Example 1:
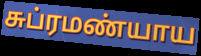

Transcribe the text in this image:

சுப்ரமண்யாய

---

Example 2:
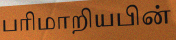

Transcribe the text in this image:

பரிமாறியபின்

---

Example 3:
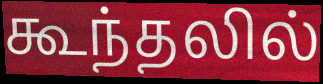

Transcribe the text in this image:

கூந்தலில்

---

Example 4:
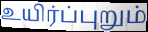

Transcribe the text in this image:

உயிர்ப்புறும்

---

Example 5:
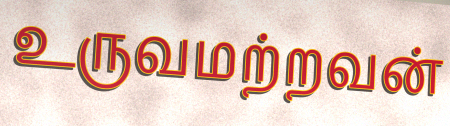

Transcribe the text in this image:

உருவமற்றவன்